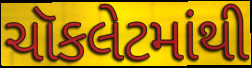
ચૉકલેટમાંથી